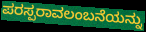
ಪರಸ್ಪರಾವಲಂಬನೆಯನ್ನು